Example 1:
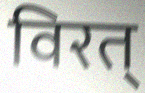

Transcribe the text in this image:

विरत्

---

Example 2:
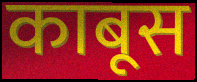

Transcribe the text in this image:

काबूस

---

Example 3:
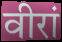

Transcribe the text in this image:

वीरां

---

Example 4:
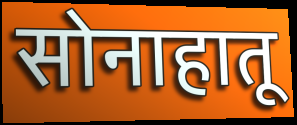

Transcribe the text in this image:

सोनाहातू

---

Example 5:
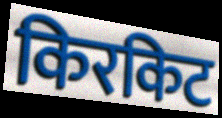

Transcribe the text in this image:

किरकिट